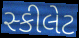
સ્કીલેટ